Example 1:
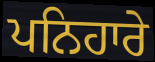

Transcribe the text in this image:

ਪਨਿਹਾਰੇ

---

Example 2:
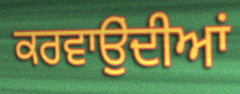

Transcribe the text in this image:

ਕਰਵਾਉੁਂਦੀਆਂ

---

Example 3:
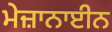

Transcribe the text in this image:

ਮੇਜ਼ਾਨਾਈਨ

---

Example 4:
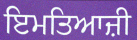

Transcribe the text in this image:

ਇਮਤਿਆਜ਼ੀ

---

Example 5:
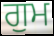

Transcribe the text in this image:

ਗੁਮ